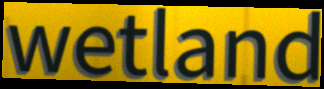
wetland